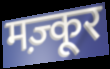
मज़्कूर